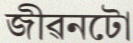
জীৱনটো